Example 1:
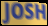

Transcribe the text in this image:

JOSH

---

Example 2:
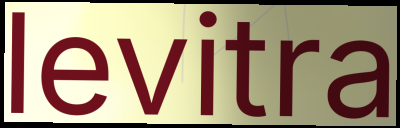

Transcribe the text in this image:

levitra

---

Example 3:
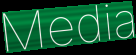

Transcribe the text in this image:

Media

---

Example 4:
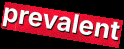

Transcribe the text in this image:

prevalent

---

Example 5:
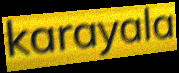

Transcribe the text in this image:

karayala